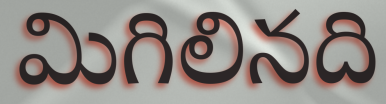
మిగిలినది